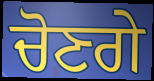
ਚੋਣਗੇ